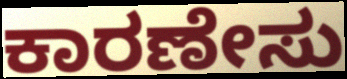
ಕಾರಣೇಸು